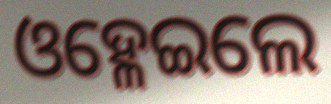
ଓହ୍ଳେଇଲେ